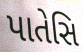
પાતેસિ